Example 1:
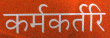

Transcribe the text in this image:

कर्मकर्तरि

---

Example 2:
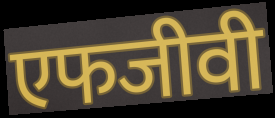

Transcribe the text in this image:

एफजीवी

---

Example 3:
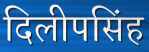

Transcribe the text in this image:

दिलीपसिंह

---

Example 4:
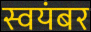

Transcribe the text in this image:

स्वयंबर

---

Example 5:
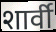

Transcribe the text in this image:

शार्वी